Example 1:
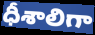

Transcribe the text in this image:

ధీశాలిగా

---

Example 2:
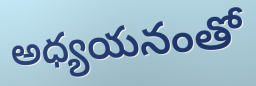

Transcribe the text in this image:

అధ్యయనంతో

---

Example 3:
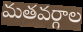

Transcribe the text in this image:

మతవర్గాల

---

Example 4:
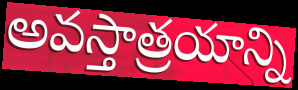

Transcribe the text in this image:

అవస్తాత్రయాన్ని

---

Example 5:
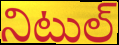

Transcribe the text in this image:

నిటుల్